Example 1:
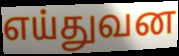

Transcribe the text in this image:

எய்துவன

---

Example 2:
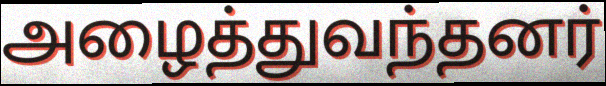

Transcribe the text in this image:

அழைத்துவந்தனர்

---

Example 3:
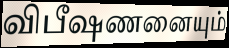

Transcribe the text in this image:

விபீஷணனையும்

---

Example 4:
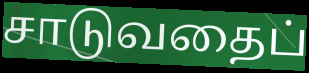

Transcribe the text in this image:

சாடுவதைப்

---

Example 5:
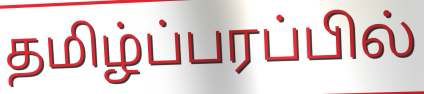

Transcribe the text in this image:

தமிழ்ப்பரப்பில்